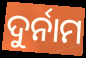
ଦୁର୍ନାମ